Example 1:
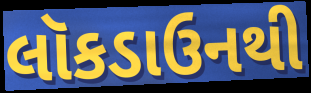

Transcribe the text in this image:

લૉકડાઉનથી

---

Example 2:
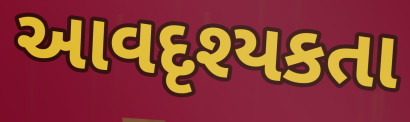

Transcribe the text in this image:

આવદૃશ્યકતા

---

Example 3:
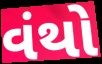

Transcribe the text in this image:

વંથો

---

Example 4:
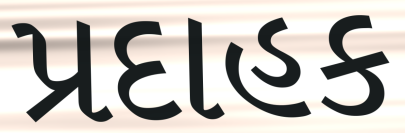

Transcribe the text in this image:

પ્રદાહક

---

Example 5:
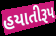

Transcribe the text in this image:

હયાતીરૂપ